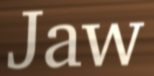
Jaw